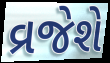
વ્રજેશે